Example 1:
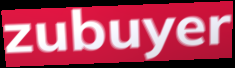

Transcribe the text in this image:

zubuyer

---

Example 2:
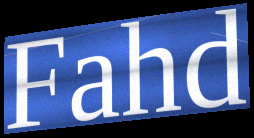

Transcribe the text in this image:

Fahd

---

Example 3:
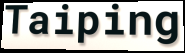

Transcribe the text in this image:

Taiping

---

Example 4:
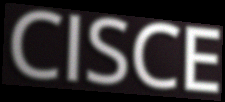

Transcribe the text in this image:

CISCE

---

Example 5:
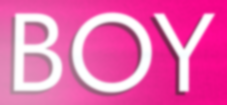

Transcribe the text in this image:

BOY